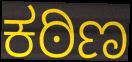
ಕಠಿಣ